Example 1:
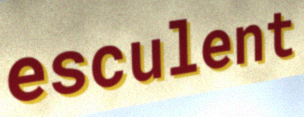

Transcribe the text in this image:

esculent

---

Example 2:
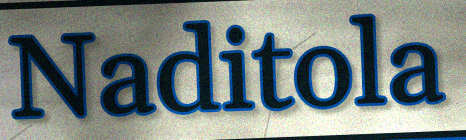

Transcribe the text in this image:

Naditola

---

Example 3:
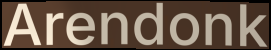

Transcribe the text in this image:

Arendonk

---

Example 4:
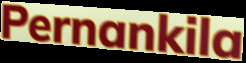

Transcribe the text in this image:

Pernankila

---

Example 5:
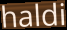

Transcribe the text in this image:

haldi